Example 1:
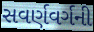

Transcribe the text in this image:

સવર્ણવર્ગની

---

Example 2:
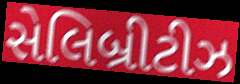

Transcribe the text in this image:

સેલિબ્રીટીઝ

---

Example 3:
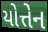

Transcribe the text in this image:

યોત્તેન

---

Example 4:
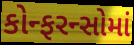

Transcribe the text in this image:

કોન્ફરન્સોમાં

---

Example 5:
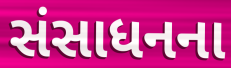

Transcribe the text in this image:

સંસાધનના